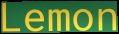
Lemon